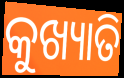
କୁଖ୍ୟାତି